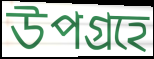
উপগ্রহে